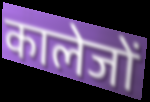
कालेजों